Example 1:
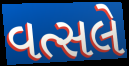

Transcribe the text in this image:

વત્સલે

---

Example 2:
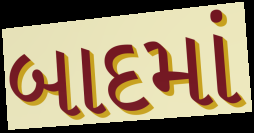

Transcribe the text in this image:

બાદમાં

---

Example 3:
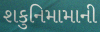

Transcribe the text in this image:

શકુનિમામાની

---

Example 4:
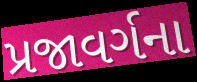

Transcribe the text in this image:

પ્રજાવર્ગના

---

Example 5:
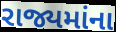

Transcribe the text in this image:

રાજ્યમાંના